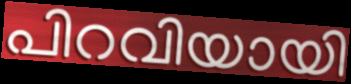
പിറവിയായി